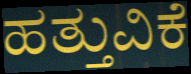
ಹತ್ತುವಿಕೆ